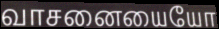
வாசனையையோ